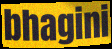
bhagini